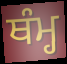
ਥੰਮ੍ਹ